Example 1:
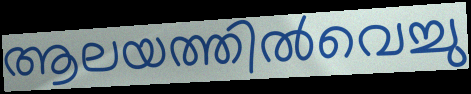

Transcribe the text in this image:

ആലയത്തിൽവെച്ചു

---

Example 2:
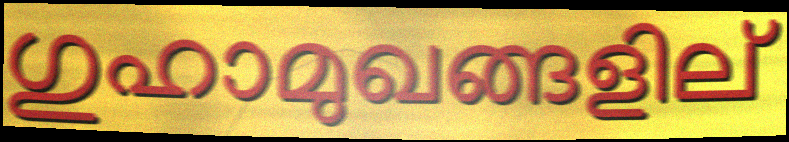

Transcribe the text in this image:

ഗുഹാമുഖങ്ങളില്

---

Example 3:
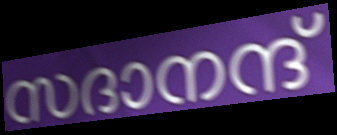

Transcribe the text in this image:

സദാനന്ദ്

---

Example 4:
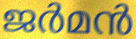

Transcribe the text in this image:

ജർമൻ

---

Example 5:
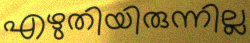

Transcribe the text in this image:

എഴുതിയിരുന്നില്ല